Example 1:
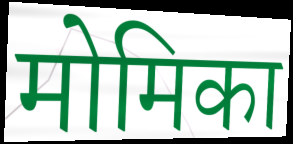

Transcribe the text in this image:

मोमिका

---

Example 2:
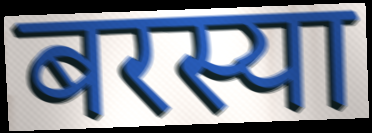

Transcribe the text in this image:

बरस्या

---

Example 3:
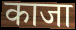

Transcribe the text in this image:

काजा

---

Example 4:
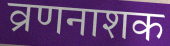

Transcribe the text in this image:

व्रणनाशक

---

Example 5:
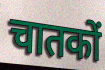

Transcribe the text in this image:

चातकों